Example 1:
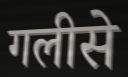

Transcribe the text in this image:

गलीसे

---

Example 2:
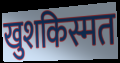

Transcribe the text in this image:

खुशकिस्मत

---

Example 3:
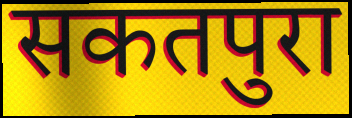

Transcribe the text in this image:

सकतपुरा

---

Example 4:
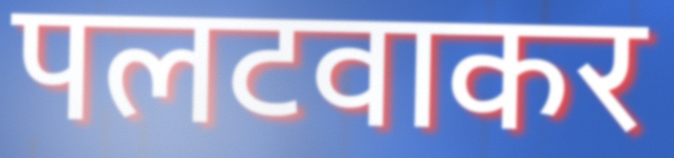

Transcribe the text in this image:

पलटवाकर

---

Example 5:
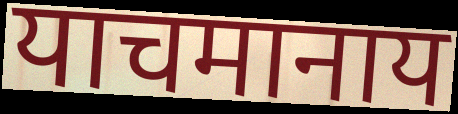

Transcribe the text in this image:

याचमानाय